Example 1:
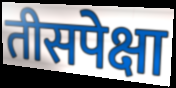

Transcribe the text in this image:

तीसपेक्षा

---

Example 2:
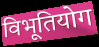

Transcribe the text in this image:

विभूतियोग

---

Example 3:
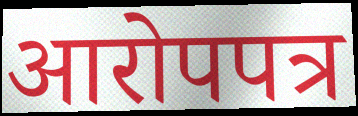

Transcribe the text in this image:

आरोपपत्र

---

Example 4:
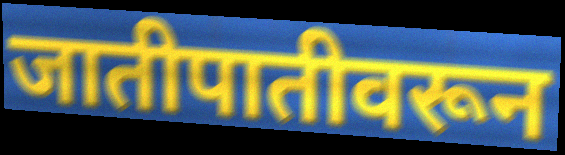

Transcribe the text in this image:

जातीपातीवरून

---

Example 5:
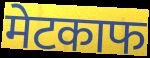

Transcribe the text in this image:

मेटकाफ